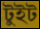
টুইট